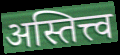
अस्तित्त्व